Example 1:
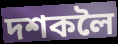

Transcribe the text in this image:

দশকলৈ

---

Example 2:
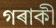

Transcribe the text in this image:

গৰাকী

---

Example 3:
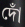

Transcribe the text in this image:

দোঁ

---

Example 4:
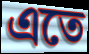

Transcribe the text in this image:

এতে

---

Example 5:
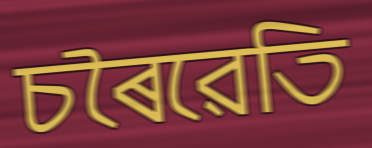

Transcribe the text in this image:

চৰৈৱেতি